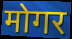
मोगर